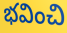
భవించి